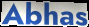
Abhas